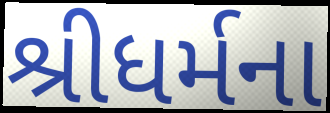
શ્રીધર્મના